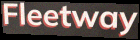
Fleetway